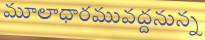
మూలాధారమువద్దనున్న